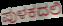
ಪುಳಕದಲಿ